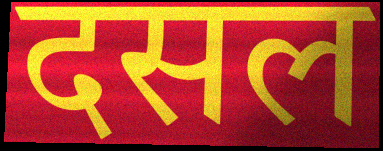
दसल